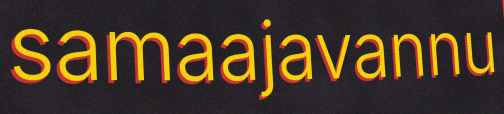
samaajavannu